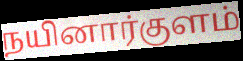
நயினார்குளம்